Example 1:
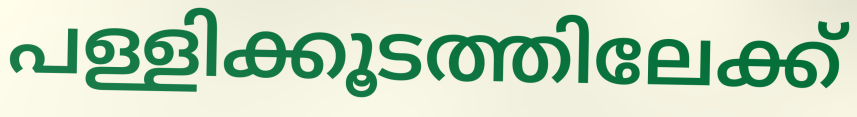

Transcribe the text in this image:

പള്ളിക്കൂടത്തിലേക്ക്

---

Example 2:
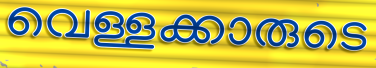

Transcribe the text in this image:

വെള്ളക്കാരുടെ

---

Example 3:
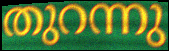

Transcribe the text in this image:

തുറന്നു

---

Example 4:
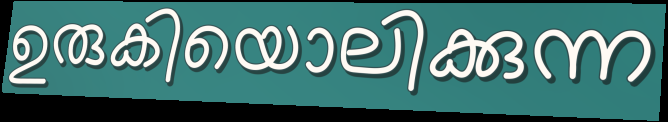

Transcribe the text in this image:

ഉരുകിയൊലിക്കുന്ന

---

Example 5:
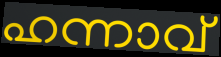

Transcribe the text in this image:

ഹന്നാവ്